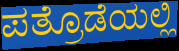
ಪತ್ರೊಡೆಯಲ್ಲಿ